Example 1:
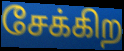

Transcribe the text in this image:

சேக்கிற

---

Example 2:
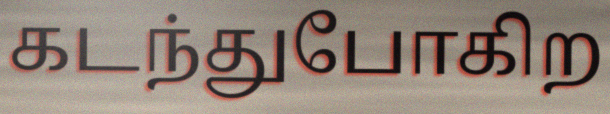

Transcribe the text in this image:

கடந்துபோகிற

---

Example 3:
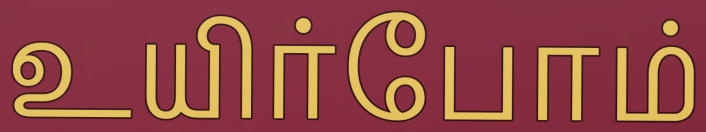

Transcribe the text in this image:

உயிர்போம்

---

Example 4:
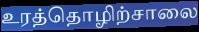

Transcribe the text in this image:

உரத்தொழிற்சாலை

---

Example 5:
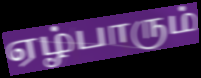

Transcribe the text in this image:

ஏழ்பாரும்